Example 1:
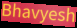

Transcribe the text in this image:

Bhavyesh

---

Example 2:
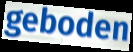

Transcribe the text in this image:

geboden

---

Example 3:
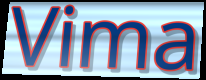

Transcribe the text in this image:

Vima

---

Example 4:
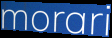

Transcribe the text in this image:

morari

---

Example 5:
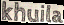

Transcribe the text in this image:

khuila